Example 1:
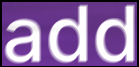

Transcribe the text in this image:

add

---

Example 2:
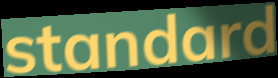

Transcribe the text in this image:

standard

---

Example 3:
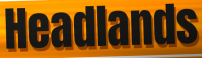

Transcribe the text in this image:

Headlands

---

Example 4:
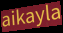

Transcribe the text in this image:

aikayla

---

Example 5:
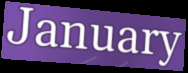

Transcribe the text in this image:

January